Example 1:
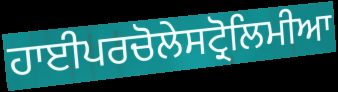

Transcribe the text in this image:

ਹਾਈਪਰਚੋਲੇਸਟ੍ਰੋਲਿਮੀਆ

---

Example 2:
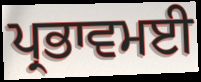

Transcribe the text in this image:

ਪ੍ਰਭਾਵਮਈ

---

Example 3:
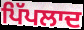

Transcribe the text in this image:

ਪਿੱਪਲਾਦ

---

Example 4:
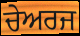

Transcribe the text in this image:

ਚੇਅਰਜ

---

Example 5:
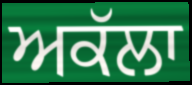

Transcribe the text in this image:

ਅਕੱਲਾ